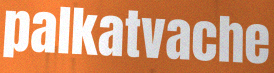
palkatvache